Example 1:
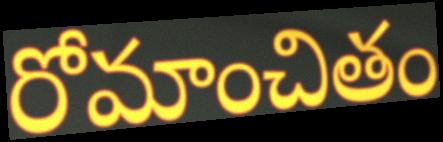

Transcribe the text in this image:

రోమాంచితం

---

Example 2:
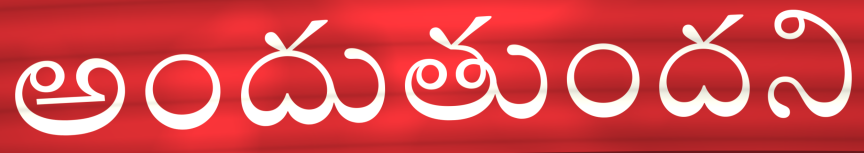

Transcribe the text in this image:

అందుతుందని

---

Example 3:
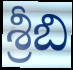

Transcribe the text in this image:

శ్రీబి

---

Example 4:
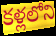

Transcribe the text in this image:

కళ్లలోని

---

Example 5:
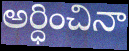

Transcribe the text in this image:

అర్ధించినా